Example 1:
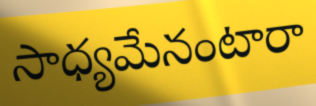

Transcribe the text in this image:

సాధ్యమేనంటారా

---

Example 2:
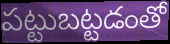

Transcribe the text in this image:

పట్టుబట్టడంతో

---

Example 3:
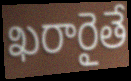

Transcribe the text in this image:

ఖరారైతే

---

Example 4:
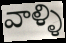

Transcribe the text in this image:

వాళ్ళి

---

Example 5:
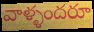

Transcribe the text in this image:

వాళ్ళందరూ